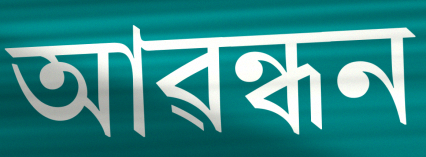
আৱন্ধন